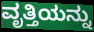
ವೃತ್ತಿಯನ್ನು